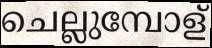
ചെല്ലുമ്പോള്